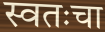
स्वतःचा